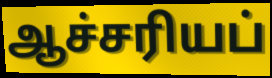
ஆச்சரியப்